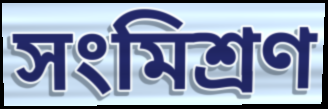
সংমিশ্রণ